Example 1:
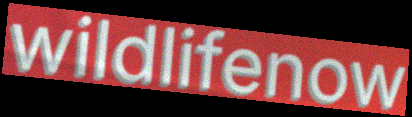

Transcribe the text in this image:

wildlifenow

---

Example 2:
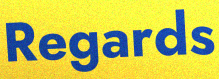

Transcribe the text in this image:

Regards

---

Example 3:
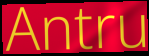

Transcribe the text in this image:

Antru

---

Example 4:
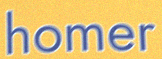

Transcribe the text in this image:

homer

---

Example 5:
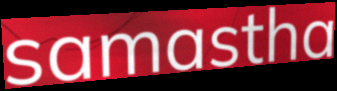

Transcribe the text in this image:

samastha